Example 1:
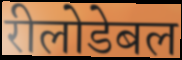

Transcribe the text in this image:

रीलोडेबल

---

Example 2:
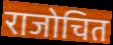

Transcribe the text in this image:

राजोचित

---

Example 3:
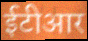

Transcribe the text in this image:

ईटीआर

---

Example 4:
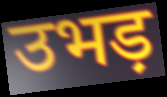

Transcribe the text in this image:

उभड़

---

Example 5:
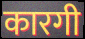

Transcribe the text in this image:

कारगी